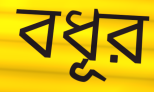
বধূর